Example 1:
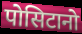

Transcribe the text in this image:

पोसिटानो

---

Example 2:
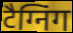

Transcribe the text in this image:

टैग्निंग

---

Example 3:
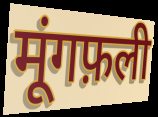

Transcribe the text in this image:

मूंगफ़ली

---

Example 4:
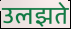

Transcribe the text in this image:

उलझते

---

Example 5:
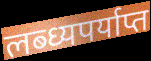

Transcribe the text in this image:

लब्ध्यपर्याप्त